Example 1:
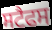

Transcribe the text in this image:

ਸਟੈਫਸ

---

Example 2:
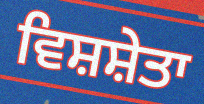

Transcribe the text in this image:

ਵਿਸ਼ਸ਼ੇਤਾ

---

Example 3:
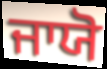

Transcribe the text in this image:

ਜਾਯੋ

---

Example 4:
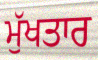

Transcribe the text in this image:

ਮੁੱਖਤਾਰ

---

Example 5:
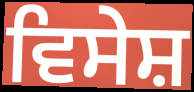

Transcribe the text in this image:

ਵਿਸੇਸ਼